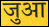
जुआ